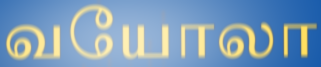
வயோலா